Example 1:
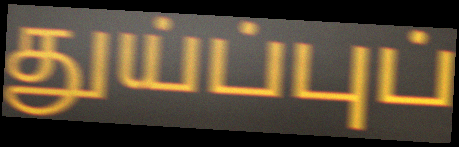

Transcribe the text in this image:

துய்ப்புப்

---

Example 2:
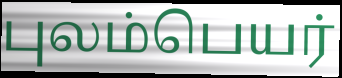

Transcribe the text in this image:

புலம்பெயர்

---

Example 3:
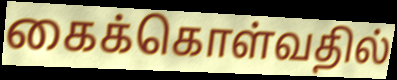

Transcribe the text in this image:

கைக்கொள்வதில்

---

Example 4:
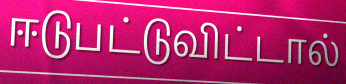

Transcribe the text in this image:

ஈடுபட்டுவிட்டால்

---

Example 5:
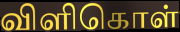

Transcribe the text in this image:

விளிகொள்